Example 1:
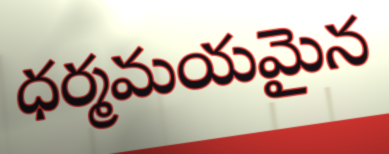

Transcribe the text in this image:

ధర్మమయమైన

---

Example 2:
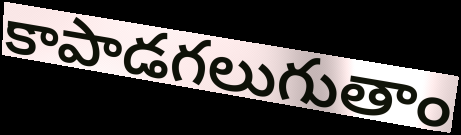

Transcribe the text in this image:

కాపాడగలుగుతాం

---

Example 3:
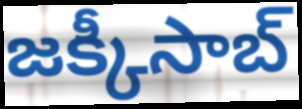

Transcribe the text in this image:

జక్కీసాబ్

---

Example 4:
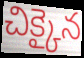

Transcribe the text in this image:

చిక్కైన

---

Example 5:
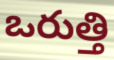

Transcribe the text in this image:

ఒరుత్తి